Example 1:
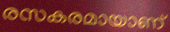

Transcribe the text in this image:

രസകരമായാണ്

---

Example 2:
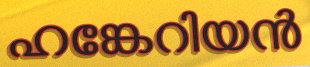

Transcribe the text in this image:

ഹങ്കേറിയൻ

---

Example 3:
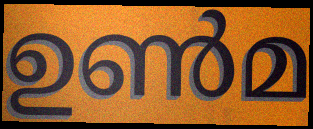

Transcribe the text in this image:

ഉൺമ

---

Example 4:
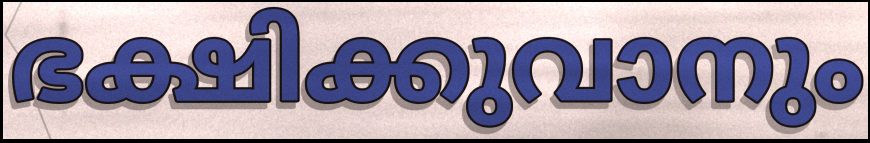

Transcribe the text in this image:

ഭക്ഷിക്കുവാനും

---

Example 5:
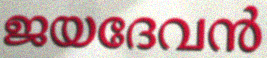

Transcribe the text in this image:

ജയദേവൻ